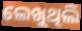
ଲେଖୁଥିଲି